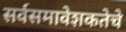
सर्वसमावेशकतेचे